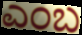
ಎಂಬ